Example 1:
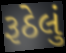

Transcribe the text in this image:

રૂઠેલું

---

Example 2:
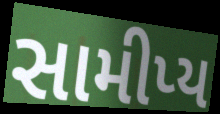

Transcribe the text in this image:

સામીપ્ય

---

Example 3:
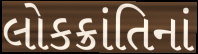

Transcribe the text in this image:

લોકક્રાંતિનાં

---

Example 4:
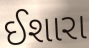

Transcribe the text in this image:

ઈશારા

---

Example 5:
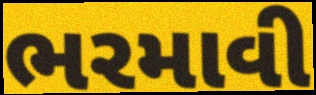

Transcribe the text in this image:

ભરમાવી